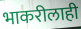
भाकरीलाही